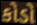
કોડો